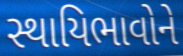
સ્થાયિભાવોને